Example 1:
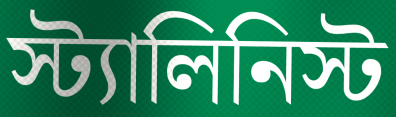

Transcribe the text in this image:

স্ট্যালিনিস্ট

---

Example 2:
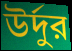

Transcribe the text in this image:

উর্দুর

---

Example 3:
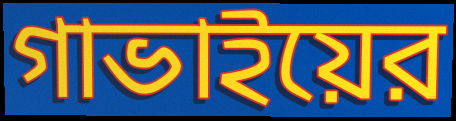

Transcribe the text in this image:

গাভাইয়ের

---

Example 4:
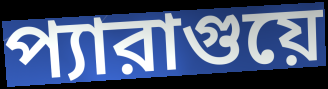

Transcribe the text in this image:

প্যারাগুয়ে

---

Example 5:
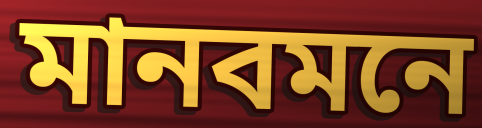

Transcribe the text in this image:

মানবমনে